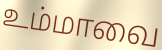
உம்மாவை